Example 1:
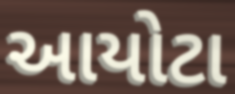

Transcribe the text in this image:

આયોટા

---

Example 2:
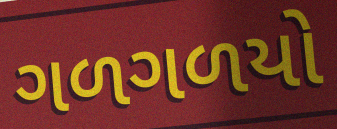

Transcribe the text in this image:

ગળગળયો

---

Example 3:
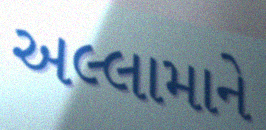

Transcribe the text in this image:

અલ્લામાને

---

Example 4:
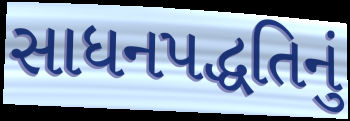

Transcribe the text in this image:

સાધનપદ્ધતિનું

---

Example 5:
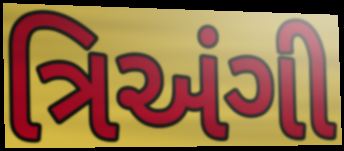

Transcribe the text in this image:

ત્રિઅંગી